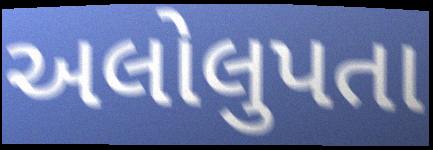
અલોલુપતા